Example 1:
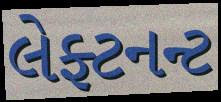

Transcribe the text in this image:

લેફ્ટનન્ટ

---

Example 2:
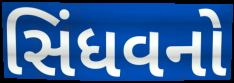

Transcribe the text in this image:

સિંધવનો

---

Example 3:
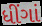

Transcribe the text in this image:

ધીંગાં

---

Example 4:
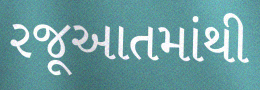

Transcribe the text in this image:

રજૂઆતમાંથી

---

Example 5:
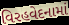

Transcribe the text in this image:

વિરહવેદનામાં